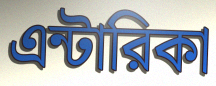
এন্টারিকা